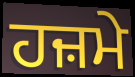
ਹਜ਼ਮੇ